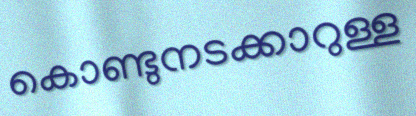
കൊണ്ടുനടക്കാറുള്ള